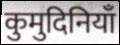
कुमुदिनियाँ